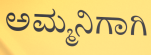
ಅಮ್ಮನಿಗಾಗಿ